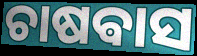
ଚାଷଵାସ